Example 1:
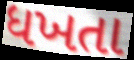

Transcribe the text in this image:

ધખતા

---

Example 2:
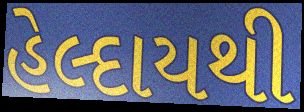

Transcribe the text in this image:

હેલ્દાયથી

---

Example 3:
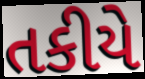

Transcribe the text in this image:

તકીયે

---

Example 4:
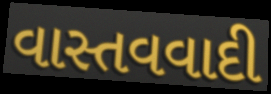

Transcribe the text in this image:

વાસ્તવવાદી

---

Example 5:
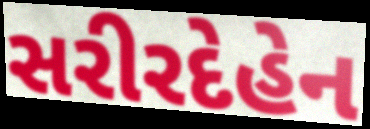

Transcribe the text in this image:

સરીરદેહેન